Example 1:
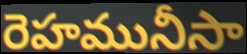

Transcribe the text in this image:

రెహమునీసా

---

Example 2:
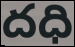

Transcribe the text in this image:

దధి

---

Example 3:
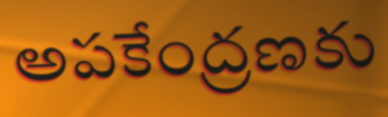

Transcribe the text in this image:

అపకేంద్రణకు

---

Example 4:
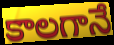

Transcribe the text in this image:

కాలగానే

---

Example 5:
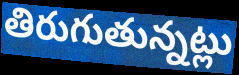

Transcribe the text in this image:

తిరుగుతున్నట్లు